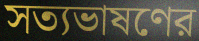
সত্যভাষণের